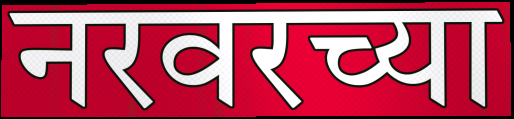
नरवरच्या